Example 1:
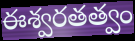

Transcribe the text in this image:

ఈశ్వరతత్వం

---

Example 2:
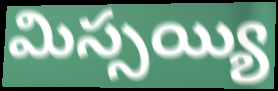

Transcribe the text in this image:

మిస్సయ్యి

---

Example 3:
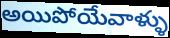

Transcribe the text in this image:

అయిపోయేవాళ్ళు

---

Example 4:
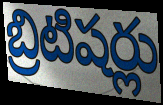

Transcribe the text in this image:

బ్రిటిషర్లు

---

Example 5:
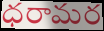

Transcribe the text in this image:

ధరామర